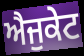
ਐਜੁਕੇਟ